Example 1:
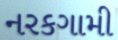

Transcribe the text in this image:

નરકગામી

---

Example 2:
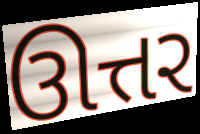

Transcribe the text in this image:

ઊત્તર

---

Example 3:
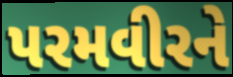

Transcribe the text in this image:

પરમવીરને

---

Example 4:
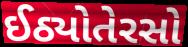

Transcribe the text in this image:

ઈઠ્યોતેરસો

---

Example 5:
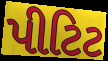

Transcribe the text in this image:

પીટિટ